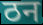
ठन